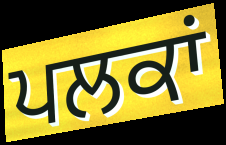
ਪਲਕਾਂ